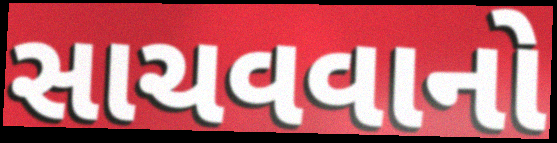
સાચવવાનો